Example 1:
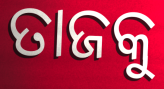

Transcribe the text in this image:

ତାଜକୁ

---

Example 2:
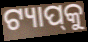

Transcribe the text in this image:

ଟ୍ୟାପ୍‌କୁ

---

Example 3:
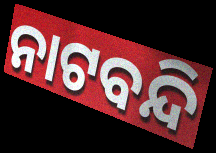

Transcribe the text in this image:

ନାଟବନ୍ଦି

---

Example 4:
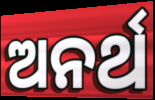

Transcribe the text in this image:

ଅନର୍ଥ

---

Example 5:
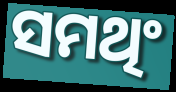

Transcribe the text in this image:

ସମଥିଂ